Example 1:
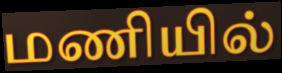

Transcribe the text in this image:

மணியில்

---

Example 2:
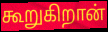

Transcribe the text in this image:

கூறுகிறான்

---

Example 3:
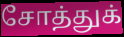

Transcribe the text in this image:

சோத்துக்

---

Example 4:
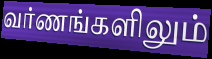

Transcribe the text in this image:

வர்ணங்களிலும்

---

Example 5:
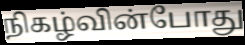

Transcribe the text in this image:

நிகழ்வின்போது